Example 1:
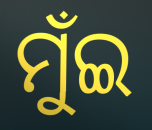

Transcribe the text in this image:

ମୁଁଇ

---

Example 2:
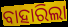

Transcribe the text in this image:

ବାହାରିଲା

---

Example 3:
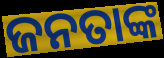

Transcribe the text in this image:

ଜନତାଙ୍କ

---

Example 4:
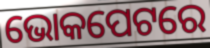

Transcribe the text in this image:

ଭୋକପେଟରେ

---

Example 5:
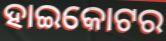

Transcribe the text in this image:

ହାଇକୋଟର